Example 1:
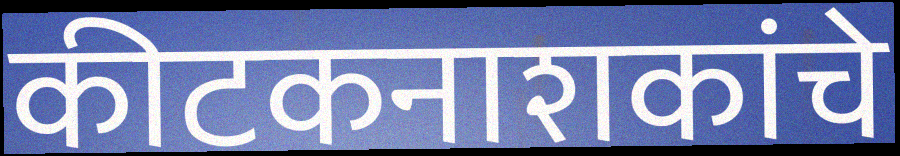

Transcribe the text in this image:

कीटकनाशकांचे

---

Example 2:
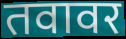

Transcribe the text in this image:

तवावर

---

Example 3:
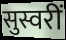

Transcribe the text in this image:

सुस्वरीं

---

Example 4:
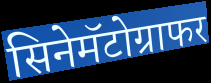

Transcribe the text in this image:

सिनेमॅटोग्राफर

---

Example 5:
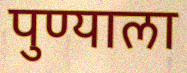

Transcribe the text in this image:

पुण्याला